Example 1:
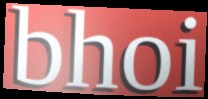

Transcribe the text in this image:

bhoi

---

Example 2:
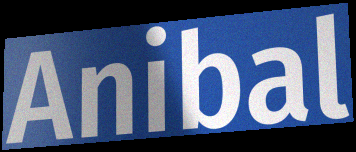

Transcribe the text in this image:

Anibal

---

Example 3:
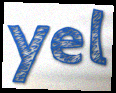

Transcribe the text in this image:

yel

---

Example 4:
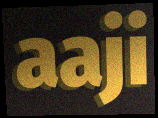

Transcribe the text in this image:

aaji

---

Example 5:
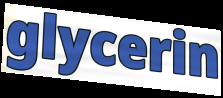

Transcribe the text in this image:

glycerin